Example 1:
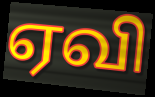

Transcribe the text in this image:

ஏவி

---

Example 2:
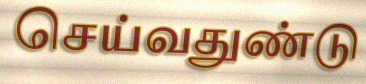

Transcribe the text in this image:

செய்வதுண்டு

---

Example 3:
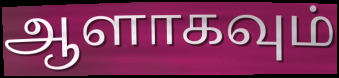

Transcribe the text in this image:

ஆளாகவும்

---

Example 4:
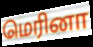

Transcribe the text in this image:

மெரினா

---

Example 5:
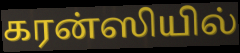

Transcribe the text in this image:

கரன்ஸியில்